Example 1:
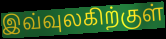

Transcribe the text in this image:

இவ்வுலகிற்குள்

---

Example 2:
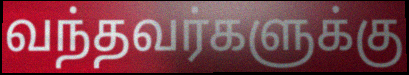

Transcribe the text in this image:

வந்தவர்களுக்கு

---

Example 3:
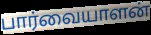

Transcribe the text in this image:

பார்வையாளன்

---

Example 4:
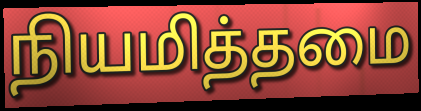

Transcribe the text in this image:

நியமித்தமை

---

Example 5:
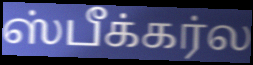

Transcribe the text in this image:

ஸ்பீக்கர்ல